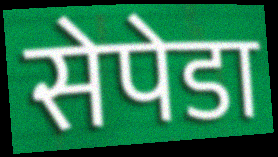
सेपेडा